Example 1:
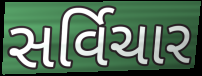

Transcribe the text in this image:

સર્વિચાર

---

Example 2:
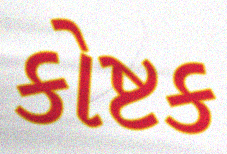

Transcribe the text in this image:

કોષ્ટક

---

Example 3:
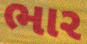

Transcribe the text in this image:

ભાર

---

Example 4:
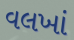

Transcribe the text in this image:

વલખાં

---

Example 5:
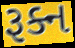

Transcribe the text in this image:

રૂક્ન